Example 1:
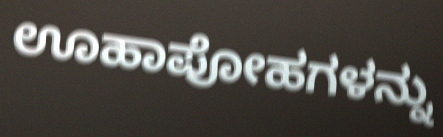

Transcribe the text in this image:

ಊಹಾಪೋಹಗಳನ್ನು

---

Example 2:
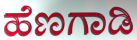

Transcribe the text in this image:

ಹೆಣಗಾಡಿ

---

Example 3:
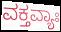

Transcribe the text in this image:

ವಕ್ತವ್ಯಾಃ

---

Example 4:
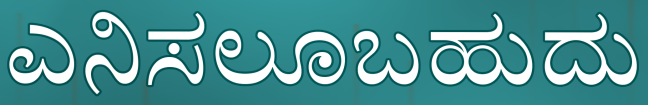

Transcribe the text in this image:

ಎನಿಸಲೂಬಹುದು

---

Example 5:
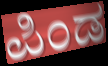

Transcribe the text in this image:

ಪಿಂಡ